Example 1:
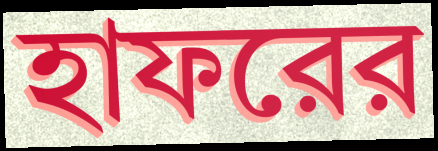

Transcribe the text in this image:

হাফরের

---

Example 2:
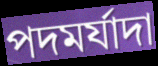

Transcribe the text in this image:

পদমর্যাদা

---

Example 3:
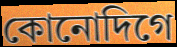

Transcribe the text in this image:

কোনোদিগে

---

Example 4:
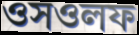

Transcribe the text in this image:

ওসওলফ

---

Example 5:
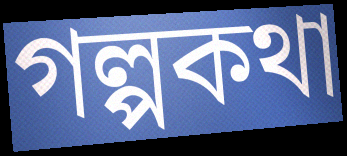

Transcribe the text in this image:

গল্পকথা